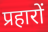
प्रहारों